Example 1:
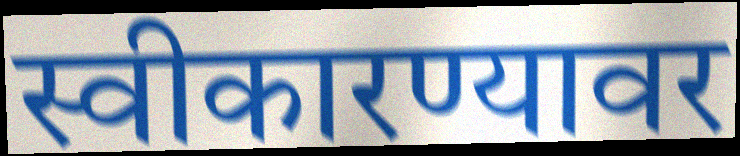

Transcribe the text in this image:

स्वीकारण्यावर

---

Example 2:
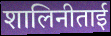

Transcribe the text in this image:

शालिनीताई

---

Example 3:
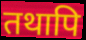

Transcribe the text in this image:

तथापि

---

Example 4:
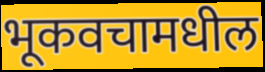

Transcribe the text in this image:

भूकवचामधील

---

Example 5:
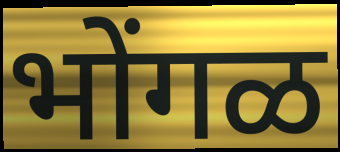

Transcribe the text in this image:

भोंगळ